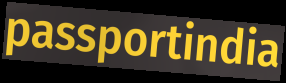
passportindia